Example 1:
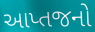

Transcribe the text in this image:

આપ્તજનો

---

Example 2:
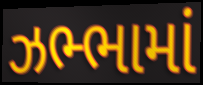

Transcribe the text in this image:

ઝભ્ભામાં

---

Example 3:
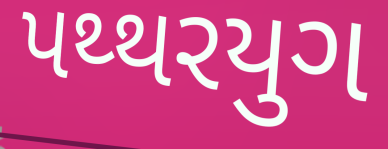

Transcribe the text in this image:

પથ્થરયુગ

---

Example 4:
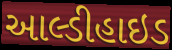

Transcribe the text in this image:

આલ્ડીહાઇડ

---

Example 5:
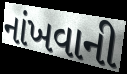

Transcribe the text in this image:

નાંખવાની